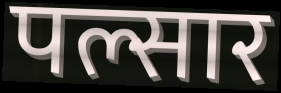
पल्सार